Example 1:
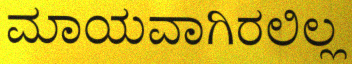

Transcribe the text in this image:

ಮಾಯವಾಗಿರಲಿಲ್ಲ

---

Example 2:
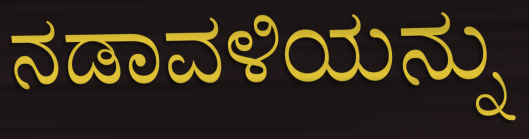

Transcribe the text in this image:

ನಡಾವಳಿಯನ್ನು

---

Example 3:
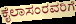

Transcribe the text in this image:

ಕೈಲಾಸಂರವರಿಗೆ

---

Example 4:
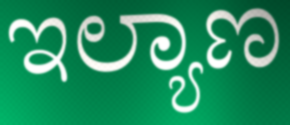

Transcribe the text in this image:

ಇಲ್ಯಾಣ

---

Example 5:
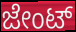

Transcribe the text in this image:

ಜೇಂಟ್